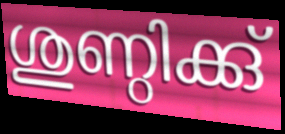
ശുണ്ഠിക്കു്